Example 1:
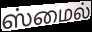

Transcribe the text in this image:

ஸ்மைல்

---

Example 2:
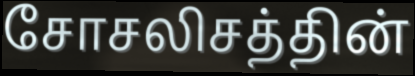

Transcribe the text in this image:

சோசலிசத்தின்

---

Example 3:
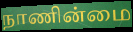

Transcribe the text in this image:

நாணின்மை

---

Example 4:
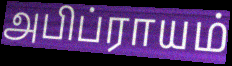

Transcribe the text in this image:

அபிப்ராயம்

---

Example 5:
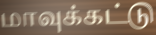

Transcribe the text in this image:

மாவுக்கட்டு